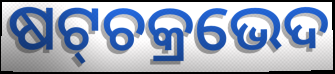
ଷଟ୍‌ଚକ୍ରଭେଦ